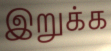
இறுக்க